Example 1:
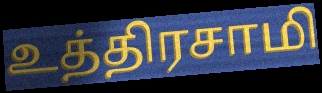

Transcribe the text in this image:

உத்திரசாமி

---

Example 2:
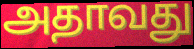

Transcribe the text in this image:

அதாவது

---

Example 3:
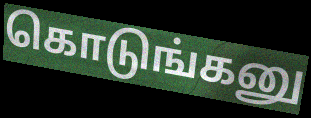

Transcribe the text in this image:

கொடுங்கனு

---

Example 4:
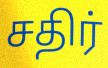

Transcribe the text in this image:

சதிர்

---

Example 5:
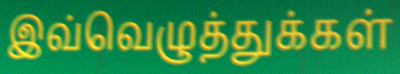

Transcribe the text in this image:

இவ்வெழுத்துக்கள்